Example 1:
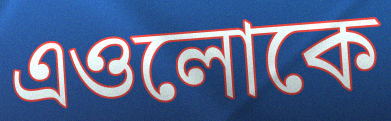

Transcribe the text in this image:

এওলোকে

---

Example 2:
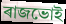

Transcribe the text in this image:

ৰাজভোই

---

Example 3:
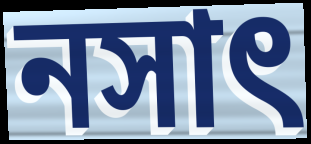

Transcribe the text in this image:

নসাৎ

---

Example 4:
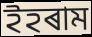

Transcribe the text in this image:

ইহৰাম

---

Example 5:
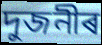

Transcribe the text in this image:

দুজনীৰ